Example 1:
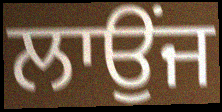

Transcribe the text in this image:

ਲਾਉਂਜ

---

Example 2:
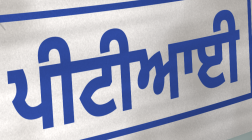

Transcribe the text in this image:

ਪੀਟੀਆਈ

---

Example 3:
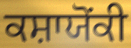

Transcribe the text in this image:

ਕਸ਼ਾਯੋਂਕੀ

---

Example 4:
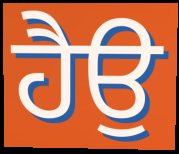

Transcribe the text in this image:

ਹੈਉ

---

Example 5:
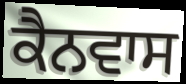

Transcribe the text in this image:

ਕੈਨਵਾਸ